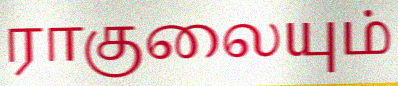
ராகுலையும்